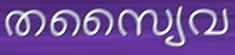
തസ്യൈവ